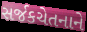
સર્જકચેતનાને